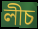
লীচ